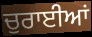
ਚੁਰਾਈਆਂ